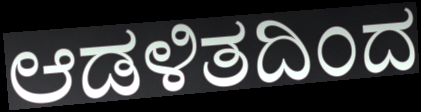
ಆಡಳಿತದಿಂದ